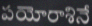
పయోరాశినే